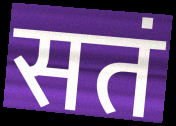
सतं